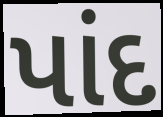
પાંદ